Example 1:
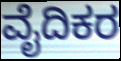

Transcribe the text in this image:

ವೈದಿಕರ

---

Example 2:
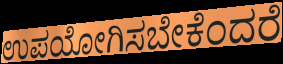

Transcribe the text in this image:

ಉಪಯೋಗಿಸಬೇಕೆಂದರೆ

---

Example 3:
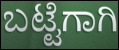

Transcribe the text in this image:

ಬಟ್ಟೆಗಾಗಿ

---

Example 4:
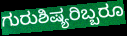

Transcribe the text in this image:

ಗುರುಶಿಷ್ಯರಿಬ್ಬರೂ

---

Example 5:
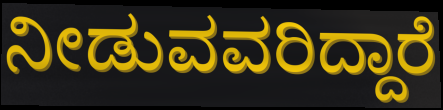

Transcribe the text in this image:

ನೀಡುವವರಿದ್ದಾರೆ